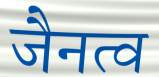
जैनत्व